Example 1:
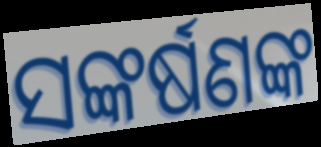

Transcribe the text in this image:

ସଙ୍କର୍ଷଣଙ୍କ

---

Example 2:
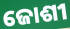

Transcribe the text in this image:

ଜୋଶୀ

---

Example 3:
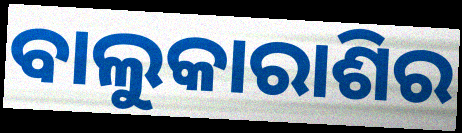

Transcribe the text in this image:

ବାଲୁକାରାଶିର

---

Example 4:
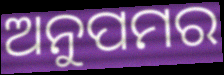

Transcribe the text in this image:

ଅନୁପମର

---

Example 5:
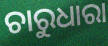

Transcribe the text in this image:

ଚାରୁଧାରା